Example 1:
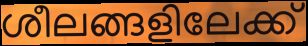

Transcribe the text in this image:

ശീലങ്ങളിലേക്ക്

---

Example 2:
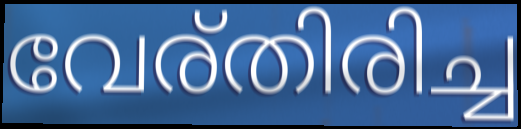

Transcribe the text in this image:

വേര്തിരിച്ച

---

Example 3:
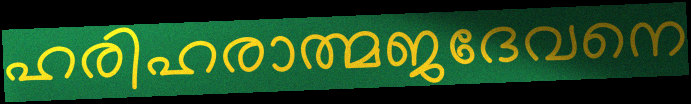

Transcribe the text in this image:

ഹരിഹരാത്മജദേവനെ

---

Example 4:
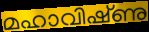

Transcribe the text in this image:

മഹാവിഷ്‌ണു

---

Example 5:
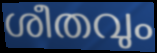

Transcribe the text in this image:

ശീതവും